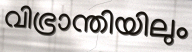
വിഭ്രാന്തിയിലും